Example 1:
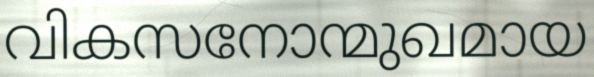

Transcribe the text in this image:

വികസനോന്മുഖമായ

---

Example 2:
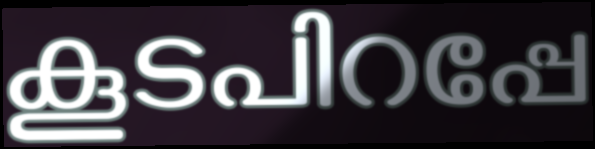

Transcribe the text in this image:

കൂടപിറപ്പേ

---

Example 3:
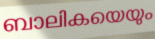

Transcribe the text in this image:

ബാലികയെയും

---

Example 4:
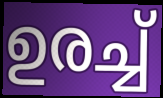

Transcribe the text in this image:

ഉരച്ച്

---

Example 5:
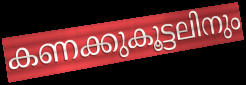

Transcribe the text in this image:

കണക്കുകൂട്ടലിനും